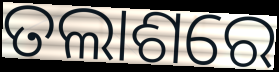
ତଲାଶରେ